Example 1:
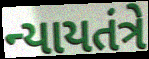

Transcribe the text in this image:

ન્યાયતંત્રે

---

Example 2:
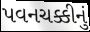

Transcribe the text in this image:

પવનચક્કીનું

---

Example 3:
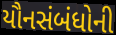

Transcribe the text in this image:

યૌનસંબંધોની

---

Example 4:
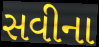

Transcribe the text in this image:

સવીના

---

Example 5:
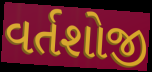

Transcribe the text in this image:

વર્તશોજી